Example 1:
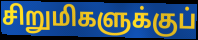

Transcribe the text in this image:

சிறுமிகளுக்குப்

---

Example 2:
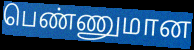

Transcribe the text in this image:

பெண்ணுமான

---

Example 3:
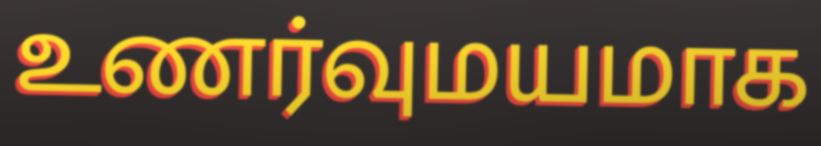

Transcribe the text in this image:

உணர்வுமயமாக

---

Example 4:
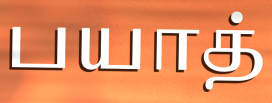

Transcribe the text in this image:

பயாத்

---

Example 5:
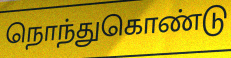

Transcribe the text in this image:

நொந்துகொண்டு